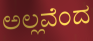
ಅಲ್ಲವೆಂದ